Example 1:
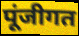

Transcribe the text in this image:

पूंजीगत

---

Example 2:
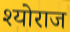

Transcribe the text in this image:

श्योराज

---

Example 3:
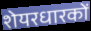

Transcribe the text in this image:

शेयरधारकों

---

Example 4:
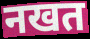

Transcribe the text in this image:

नखत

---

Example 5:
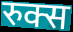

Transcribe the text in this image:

रुक्स